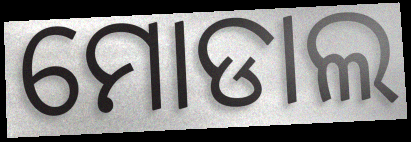
ମୋଡାଲ